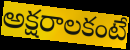
అక్షరాలకంటే